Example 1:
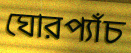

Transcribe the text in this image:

ঘোরপ্যাঁচ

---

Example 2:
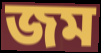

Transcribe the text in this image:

জম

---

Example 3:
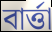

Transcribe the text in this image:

বার্ত্তা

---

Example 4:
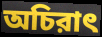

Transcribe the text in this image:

অচিরাৎ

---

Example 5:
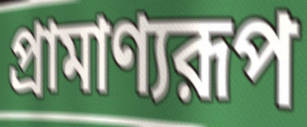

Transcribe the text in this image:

প্রামাণ্যরূপ